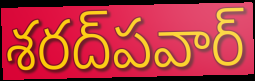
శరద్‌పవార్